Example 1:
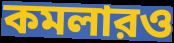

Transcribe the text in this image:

কমলারও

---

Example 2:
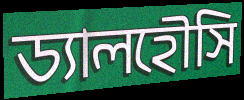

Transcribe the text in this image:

ড্যালহৌসি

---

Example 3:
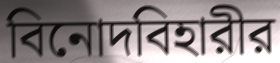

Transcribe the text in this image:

বিনোদবিহারীর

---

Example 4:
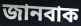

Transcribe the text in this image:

জানবাক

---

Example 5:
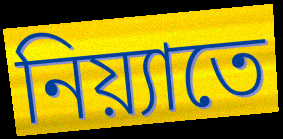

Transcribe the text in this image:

নিয়্যাতে